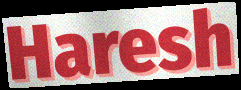
Haresh